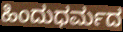
ಹಿಂದುಧರ್ಮದ